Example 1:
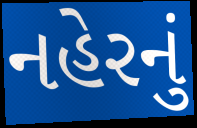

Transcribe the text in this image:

નહેરનું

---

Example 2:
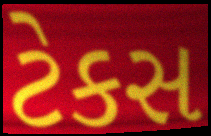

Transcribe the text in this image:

ટેકસ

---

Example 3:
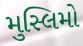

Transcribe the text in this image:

મુસ્લિમો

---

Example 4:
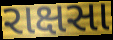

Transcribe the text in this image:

રાક્ષસા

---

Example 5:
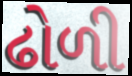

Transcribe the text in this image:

ઢોળી